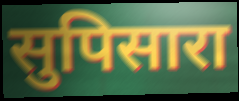
सुपिसारा